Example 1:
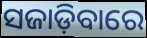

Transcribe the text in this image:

ସଜାଡ଼ିବାରେ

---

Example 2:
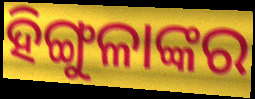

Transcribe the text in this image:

ହିଙ୍ଗୁଳାଙ୍କର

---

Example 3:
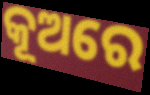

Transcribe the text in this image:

କୂଅରେ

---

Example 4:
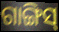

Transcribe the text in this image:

ଗାଙ୍ଗିସ୍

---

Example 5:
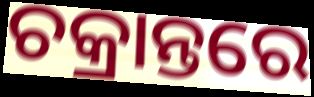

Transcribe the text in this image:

ଚକ୍ରାନ୍ତରେ